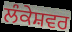
ਲੰਕੇਸ਼ਵਰ